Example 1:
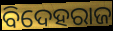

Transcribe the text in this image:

ବିଦେହରାଜ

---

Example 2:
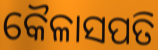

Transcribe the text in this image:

କୈଳାସପତି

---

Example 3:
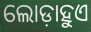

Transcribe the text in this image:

ଲୋଡ଼ାହୁଏ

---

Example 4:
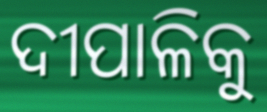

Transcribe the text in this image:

ଦୀପାଳିକୁ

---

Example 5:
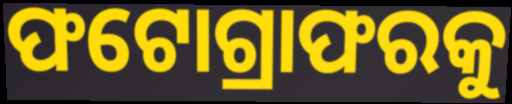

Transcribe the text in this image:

ଫଟୋଗ୍ରାଫରକୁ